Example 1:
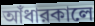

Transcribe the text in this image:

আঁধারকালে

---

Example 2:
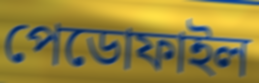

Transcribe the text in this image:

পেডোফাইল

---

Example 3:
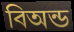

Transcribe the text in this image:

বিঅন্ড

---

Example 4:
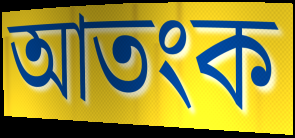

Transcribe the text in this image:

আতংক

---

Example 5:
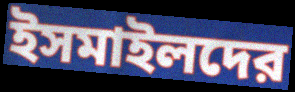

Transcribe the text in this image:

ইসমাইলদের